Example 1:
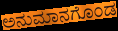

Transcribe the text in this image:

ಅನುಮಾನಗೊಂಡ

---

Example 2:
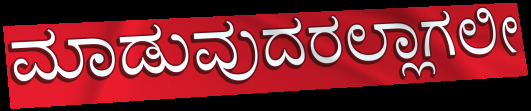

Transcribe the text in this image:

ಮಾಡುವುದರಲ್ಲಾಗಲೀ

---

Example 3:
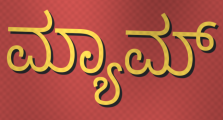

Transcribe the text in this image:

ಮ್ಯಾಮ್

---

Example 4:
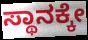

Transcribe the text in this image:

ಸ್ಥಾನಕ್ಕೇ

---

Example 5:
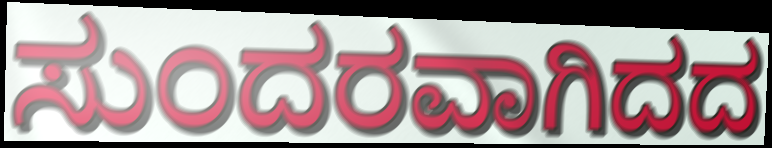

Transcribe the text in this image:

ಸುಂದರವಾಗಿದದ